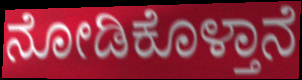
ನೋಡಿಕೊಳ್ತಾನೆ